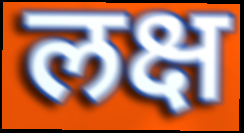
लक्ष